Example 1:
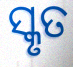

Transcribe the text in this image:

ସ୍କୃତ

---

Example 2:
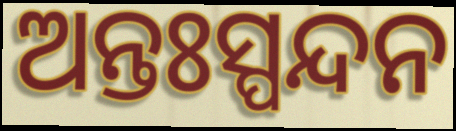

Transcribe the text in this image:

ଅନ୍ତଃସ୍ପନ୍ଦନ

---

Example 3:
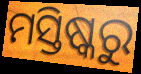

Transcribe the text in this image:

ମସ୍ତିଷ୍କରୁ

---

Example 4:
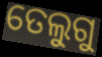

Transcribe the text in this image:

ତେଲୁଗୁ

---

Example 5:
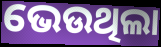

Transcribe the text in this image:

ଭେଉଥିଲା